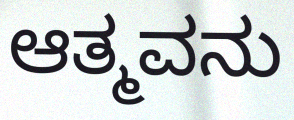
ಆತ್ಮವನು